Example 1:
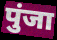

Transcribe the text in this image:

पुंजा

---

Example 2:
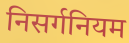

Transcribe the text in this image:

निसर्गनियम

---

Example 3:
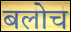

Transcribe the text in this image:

बलोच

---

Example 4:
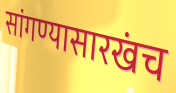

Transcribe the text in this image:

सांगण्यासारखंच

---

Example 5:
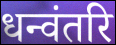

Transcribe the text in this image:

धन्वंतरि